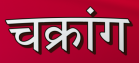
चक्रांग